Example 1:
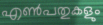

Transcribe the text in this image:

എൺപതുകളും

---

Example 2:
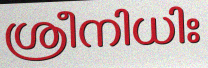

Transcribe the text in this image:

ശ്രീനിധിഃ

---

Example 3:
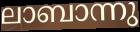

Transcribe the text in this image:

ലാബാന്നു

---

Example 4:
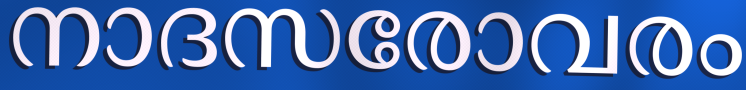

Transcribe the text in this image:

നാദസരോവരം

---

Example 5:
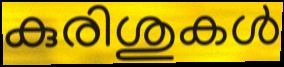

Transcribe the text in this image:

കുരിശുകൾ